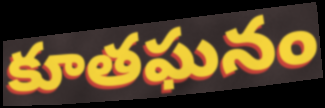
కూతఘనం